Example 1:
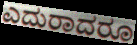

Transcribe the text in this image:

ಎದುರಾದರೂ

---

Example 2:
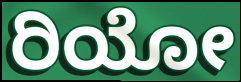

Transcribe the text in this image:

ರಿಯೋ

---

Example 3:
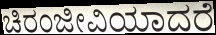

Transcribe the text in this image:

ಚಿರಂಜೀವಿಯಾದರೆ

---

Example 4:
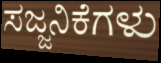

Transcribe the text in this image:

ಸಜ್ಜನಿಕೆಗಳು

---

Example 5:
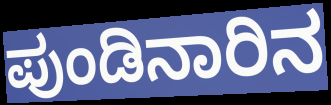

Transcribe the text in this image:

ಪುಂಡಿನಾರಿನ